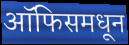
ऑफिसमधून